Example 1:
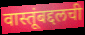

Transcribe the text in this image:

वास्तूंबद्दलची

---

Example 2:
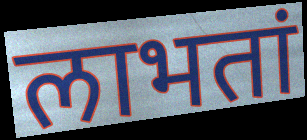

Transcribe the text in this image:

लाभतां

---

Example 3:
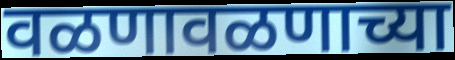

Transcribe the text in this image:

वळणावळणाच्या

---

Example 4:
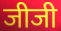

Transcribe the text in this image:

जीजी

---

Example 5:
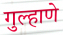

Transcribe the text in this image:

गुल्हाणे